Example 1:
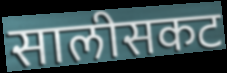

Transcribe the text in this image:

सालीसकट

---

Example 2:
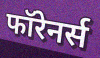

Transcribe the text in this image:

फॉरेनर्स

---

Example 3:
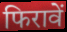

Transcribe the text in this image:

फिरावें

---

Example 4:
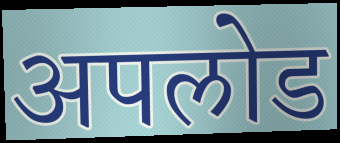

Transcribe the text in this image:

अपलोड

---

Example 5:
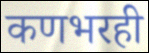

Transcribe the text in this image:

कणभरही